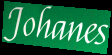
Johanes